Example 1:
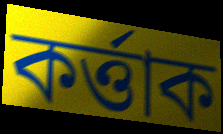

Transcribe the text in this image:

কৰ্ত্তাক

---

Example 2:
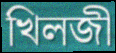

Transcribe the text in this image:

খিলজী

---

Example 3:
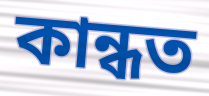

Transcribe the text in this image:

কান্ধত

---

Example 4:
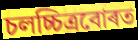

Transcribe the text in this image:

চলচ্চিত্ৰবোৰত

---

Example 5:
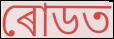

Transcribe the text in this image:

ৰোডত